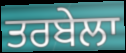
ਤਰਬੇਲਾ